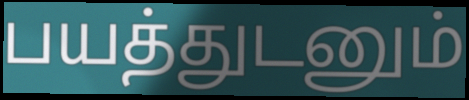
பயத்துடனும்